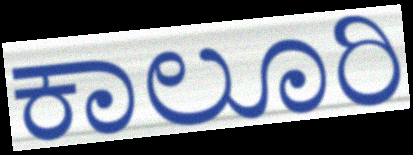
ಕಾಲೂರಿ